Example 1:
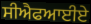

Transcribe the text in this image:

ਸੀਐਫਆਈਏ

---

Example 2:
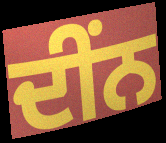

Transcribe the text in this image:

ਦੀਂਨ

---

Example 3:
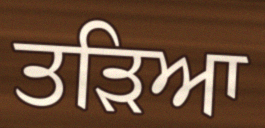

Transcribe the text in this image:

ਤੜਿਆ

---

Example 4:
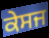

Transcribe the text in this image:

ਕੇਸਜ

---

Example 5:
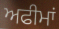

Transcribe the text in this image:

ਅਫੀਮਾਂ